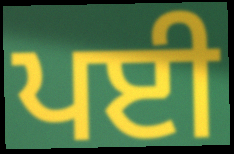
ਪਈ